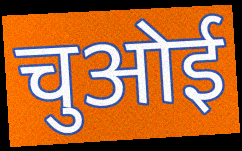
चुओई